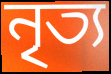
নৃত্য